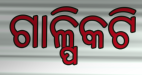
ଗାଳ୍ପିକଟି